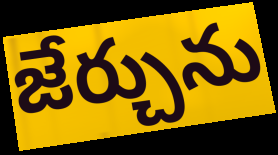
జేర్చును